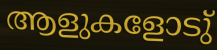
ആളുകളോടു്